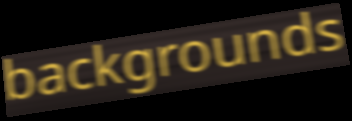
backgrounds